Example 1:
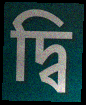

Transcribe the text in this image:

দ্বি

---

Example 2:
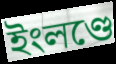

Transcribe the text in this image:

ইংলণ্ডে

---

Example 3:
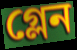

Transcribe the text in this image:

গ্লেন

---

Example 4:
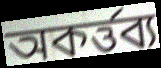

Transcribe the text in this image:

অকর্ত্তব্য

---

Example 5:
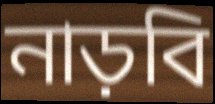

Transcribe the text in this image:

নাড়বি